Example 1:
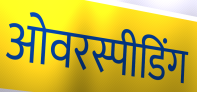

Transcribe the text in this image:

ओवरस्पीडिंग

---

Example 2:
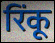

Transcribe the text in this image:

रिंकू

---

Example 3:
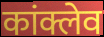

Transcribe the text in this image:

कांक्लेव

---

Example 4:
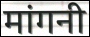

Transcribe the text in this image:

मांगनी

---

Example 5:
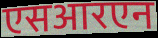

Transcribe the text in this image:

एसआरएन